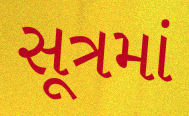
સૂત્રમાં